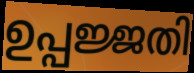
ഉപ്പജ്ജതി